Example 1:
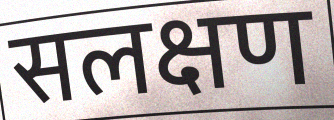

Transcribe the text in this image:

सलक्षण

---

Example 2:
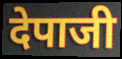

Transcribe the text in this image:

देपाजी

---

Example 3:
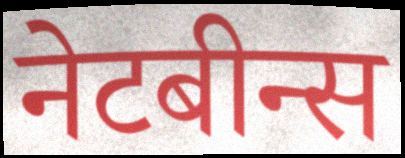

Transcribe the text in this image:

नेटबीन्स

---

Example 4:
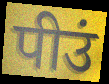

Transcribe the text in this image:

पीउं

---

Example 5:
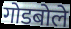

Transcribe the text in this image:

गोडबोले